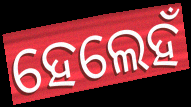
ହେଲେହଁ